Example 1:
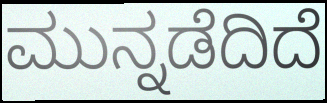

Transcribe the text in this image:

ಮುನ್ನಡೆದಿದೆ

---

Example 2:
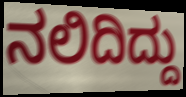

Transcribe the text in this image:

ನಲಿದಿದ್ದು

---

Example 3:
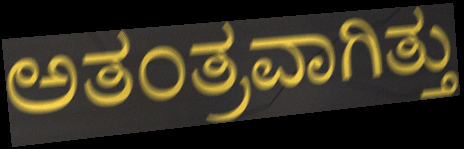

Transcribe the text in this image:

ಅತಂತ್ರವಾಗಿತ್ತು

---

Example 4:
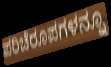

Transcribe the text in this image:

ಪರಿಚೆರೂಪಗಳನ್ನೂ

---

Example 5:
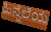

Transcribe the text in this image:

ಹಿನ್ನೆಲೆಯ